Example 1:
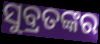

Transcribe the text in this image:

ସୁବ୍ରତଙ୍କର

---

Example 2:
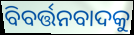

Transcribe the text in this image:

ବିବର୍ତ୍ତନବାଦକୁ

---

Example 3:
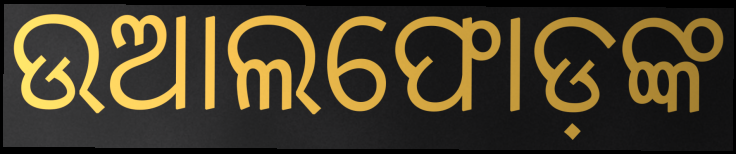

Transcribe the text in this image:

ଉଆଲଫୋଡ଼ଙ୍କ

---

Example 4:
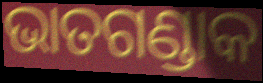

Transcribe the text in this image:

ଭାତଗଣ୍ଡାକ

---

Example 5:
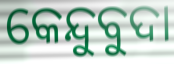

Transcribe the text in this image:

କେନ୍ଦୁବୁଦା